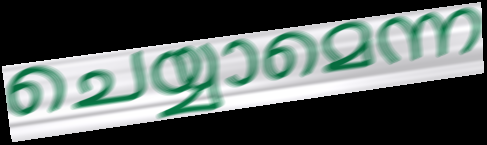
ചെയ്യാമെന്ന